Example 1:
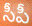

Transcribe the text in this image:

సీపీ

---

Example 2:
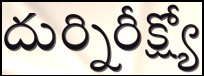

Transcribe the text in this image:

దుర్నిరీక్ష్యో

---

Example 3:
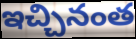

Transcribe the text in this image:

ఇచ్చినంత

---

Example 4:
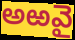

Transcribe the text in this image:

అఱవై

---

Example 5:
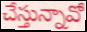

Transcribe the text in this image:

చేస్తున్నావో